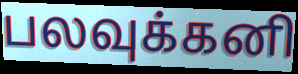
பலவுக்கனி